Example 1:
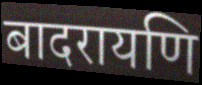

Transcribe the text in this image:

बादरायणि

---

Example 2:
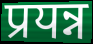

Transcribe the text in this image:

प्रयन्न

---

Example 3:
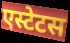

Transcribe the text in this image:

एस्टेटस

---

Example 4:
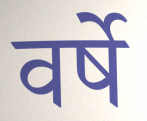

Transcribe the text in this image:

वर्षे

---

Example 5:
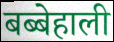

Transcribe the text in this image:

बब्बेहाली